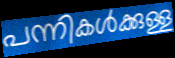
പന്നികൾക്കുള്ള